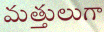
మత్తులుగా